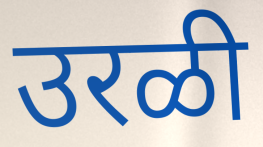
उरळी